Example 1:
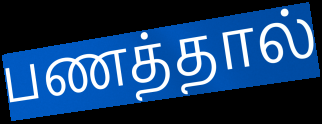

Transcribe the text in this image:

பணத்தால்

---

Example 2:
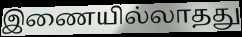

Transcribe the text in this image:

இணையில்லாதது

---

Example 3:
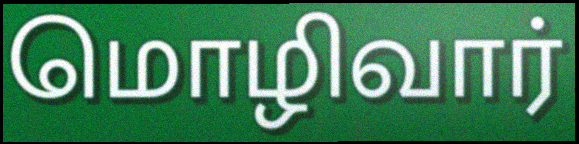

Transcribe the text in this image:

மொழிவார்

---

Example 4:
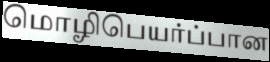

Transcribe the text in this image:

மொழிபெயர்ப்பான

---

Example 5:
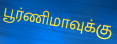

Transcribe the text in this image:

பூர்ணிமாவுக்கு